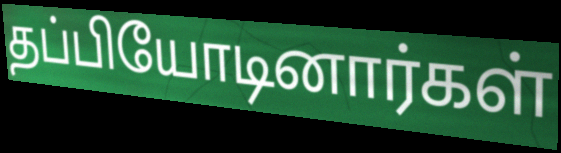
தப்பியோடினார்கள்